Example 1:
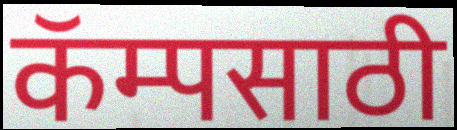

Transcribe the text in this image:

कॅम्पसाठी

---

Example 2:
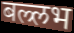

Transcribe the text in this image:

बल्लभ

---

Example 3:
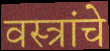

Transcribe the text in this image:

वस्त्रांचे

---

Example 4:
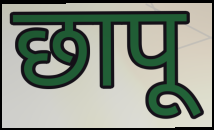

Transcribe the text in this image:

छापू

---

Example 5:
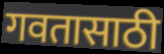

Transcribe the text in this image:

गवतासाठी